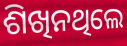
ଶିଖିନଥିଲେ